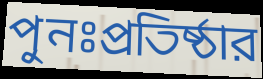
পুনঃপ্রতিষ্ঠার